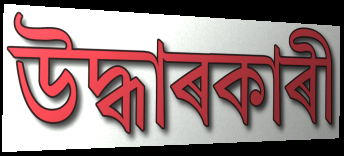
উদ্ধাৰকাৰী